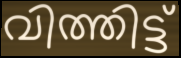
വിത്തിട്ട്